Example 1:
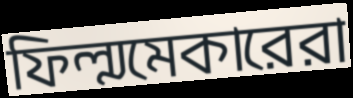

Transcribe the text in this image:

ফিল্মমেকারেরা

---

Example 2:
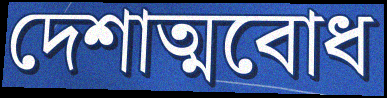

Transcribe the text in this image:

দেশাত্মবোধ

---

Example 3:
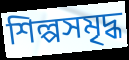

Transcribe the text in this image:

শিল্পসমৃদ্ধ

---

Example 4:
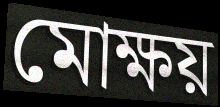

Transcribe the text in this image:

মোক্ষয়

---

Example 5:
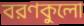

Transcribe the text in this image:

বরণকুলো